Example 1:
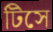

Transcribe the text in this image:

টিসে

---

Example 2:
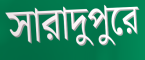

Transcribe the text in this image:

সারাদুপুরে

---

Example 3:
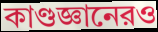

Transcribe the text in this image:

কাণ্ডজ্ঞানেরও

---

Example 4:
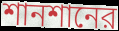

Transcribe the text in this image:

শানশানের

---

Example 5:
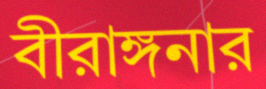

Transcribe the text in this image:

বীরাঙ্গনার